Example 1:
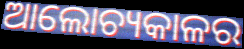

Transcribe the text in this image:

ଆଲୋଚ୍ୟକାଳର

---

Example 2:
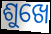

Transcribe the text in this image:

ଶୁଖେ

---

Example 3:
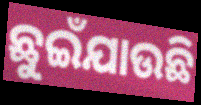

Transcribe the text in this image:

ଛୁଇଁଯାଉଛି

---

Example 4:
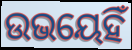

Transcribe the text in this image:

ଉଭୟେହିଁ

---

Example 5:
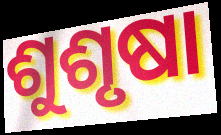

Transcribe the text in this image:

ଶୁଶୃଷା